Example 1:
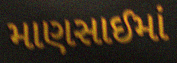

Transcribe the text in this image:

માણસાઈમાં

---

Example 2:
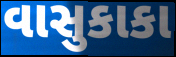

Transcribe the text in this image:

વાસુકાકા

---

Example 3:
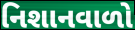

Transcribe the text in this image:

નિશાનવાળો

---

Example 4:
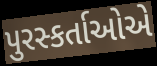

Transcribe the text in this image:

પુરસ્કર્તાઓએ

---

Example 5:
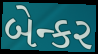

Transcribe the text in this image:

બેન્કર